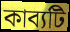
কাব্যটি